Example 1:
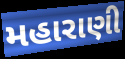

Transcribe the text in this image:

મહારાણી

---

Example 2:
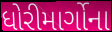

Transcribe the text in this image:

ધોરીમાર્ગોના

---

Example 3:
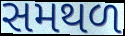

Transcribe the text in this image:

સમથળ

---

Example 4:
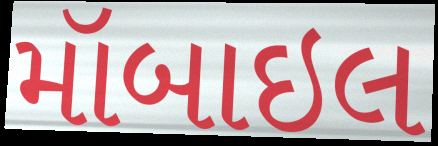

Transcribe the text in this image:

મૉબાઇલ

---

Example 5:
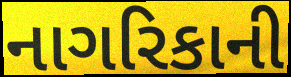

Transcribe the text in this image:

નાગરિકાની